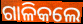
ଗାଳିକଲେ